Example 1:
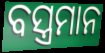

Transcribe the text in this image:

ବସ୍ତ୍ରମାନ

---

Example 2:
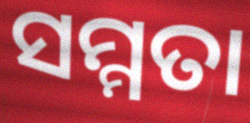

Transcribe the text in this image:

ସମ୍ମତା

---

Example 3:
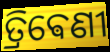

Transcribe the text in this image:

ତ୍ରିଵେଣୀ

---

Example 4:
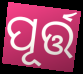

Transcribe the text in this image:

ପୂର୍ତ୍ତ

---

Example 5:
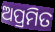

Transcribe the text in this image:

ଅପ୍ରମିତ